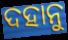
ଦହାନୁ